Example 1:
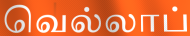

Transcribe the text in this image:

வெல்லாப்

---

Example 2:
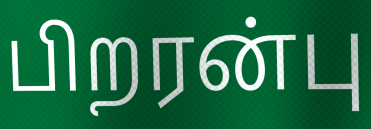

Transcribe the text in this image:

பிறரன்பு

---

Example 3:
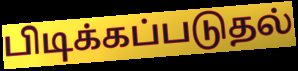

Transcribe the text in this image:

பிடிக்கப்படுதல்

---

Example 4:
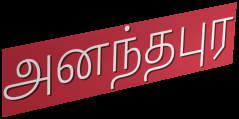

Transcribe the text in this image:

அனந்தபுர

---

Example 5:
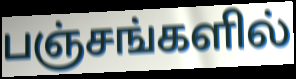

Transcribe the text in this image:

பஞ்சங்களில்